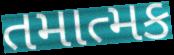
તમાત્મક